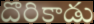
దొరికాడు